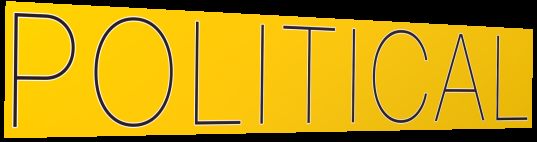
POLITICAL